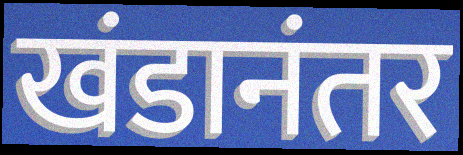
खंडानंतर